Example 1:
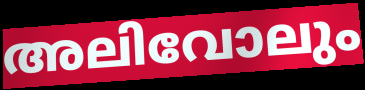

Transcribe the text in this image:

അലിവോലും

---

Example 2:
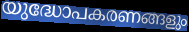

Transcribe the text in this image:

യുദ്ധോപകരണങ്ങളും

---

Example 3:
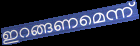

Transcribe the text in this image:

ഇറങ്ങണമെന്ന്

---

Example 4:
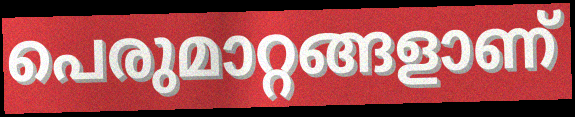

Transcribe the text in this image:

പെരുമാറ്റങ്ങളാണ്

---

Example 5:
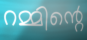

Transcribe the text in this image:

റമ്മിന്റെ